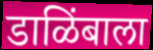
डाळिंबाला